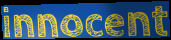
innocent